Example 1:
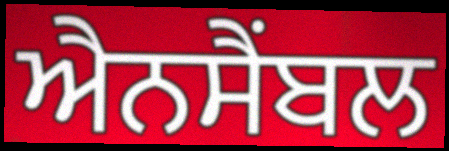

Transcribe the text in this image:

ਐਨਸੈਂਬਲ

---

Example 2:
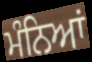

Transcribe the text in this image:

ਮੰਨਿਆਂ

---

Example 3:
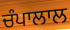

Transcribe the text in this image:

ਚੰਪਾਲਾਲ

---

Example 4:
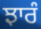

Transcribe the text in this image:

ਝਾਰੰ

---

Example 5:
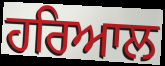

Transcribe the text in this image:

ਹਰਿਆਲ